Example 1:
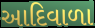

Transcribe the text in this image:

આદિવાળા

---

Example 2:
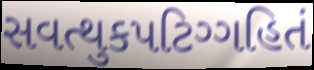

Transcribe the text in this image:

સવત્થુકપટિગ્ગહિતં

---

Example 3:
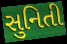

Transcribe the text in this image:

સુનિતી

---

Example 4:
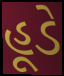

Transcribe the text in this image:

હૂડે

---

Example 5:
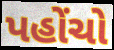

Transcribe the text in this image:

પહોંચો